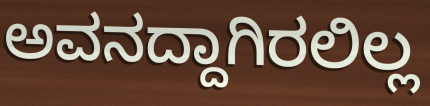
ಅವನದ್ದಾಗಿರಲಿಲ್ಲ